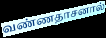
வண்ணதாசனால்